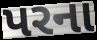
પરના